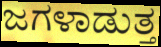
ಜಗಳಾಡುತ್ತ